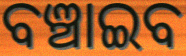
ବଞ୍ଚାଇବ